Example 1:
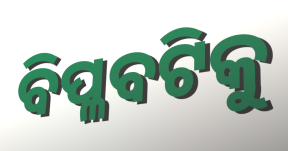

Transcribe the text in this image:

ବିପ୍ଳବଟିକୁ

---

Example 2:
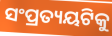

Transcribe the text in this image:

ସଂପ୍ରତ୍ୟୟଟିକୁ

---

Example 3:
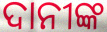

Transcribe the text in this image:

ଦାନୀଙ୍କ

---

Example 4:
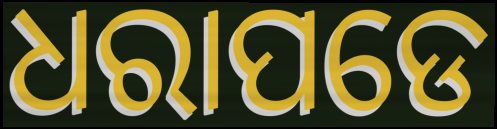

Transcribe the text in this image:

ଧରାପଡେ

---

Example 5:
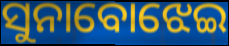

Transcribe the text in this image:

ସୁନାବୋଝେଇ